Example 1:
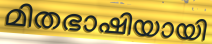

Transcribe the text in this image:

മിതഭാഷിയായി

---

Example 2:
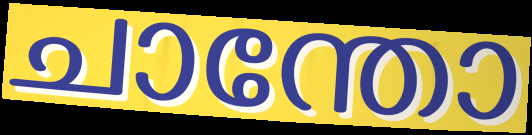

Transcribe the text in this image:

ചാന്തോ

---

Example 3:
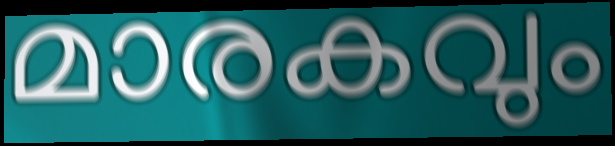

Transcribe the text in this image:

മാരകവും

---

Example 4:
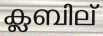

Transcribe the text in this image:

ക്ലബില്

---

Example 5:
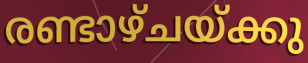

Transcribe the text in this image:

രണ്ടാഴ്ചയ്ക്കു